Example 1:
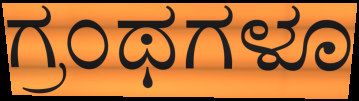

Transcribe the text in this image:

ಗ್ರಂಥಗಳೂ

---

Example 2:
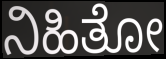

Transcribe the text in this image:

ನಿಹಿತೋ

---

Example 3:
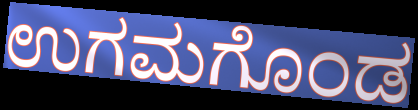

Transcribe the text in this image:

ಉಗಮಗೊಂಡ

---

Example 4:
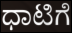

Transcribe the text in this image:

ಧಾಟಿಗೆ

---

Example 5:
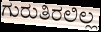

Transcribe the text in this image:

ಗುರುತಿರಲಿಲ್ಲ